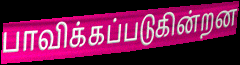
பாவிக்கப்படுகின்றன